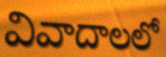
వివాదాలలో